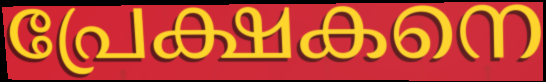
പ്രേക്ഷകനെ